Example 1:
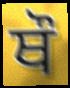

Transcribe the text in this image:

ਥੌ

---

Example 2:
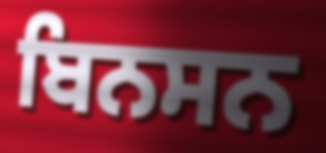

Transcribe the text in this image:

ਬਿਨਸਨ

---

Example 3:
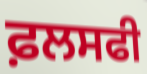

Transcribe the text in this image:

ਫ਼ਲਸਫੀ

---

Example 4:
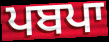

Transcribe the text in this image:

ਪਬਪਾ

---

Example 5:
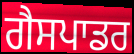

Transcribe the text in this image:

ਗੈਸਪਾਡਰ